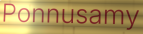
Ponnusamy